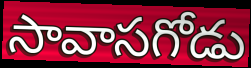
సావాసగోడు